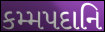
કમ્મપદાનિ